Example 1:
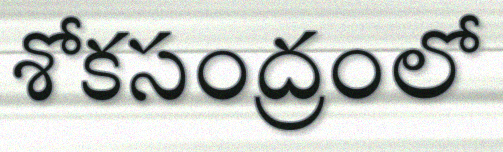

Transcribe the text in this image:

శోకసంద్రంలో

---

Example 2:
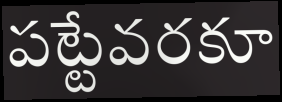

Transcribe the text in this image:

పట్టేవరకూ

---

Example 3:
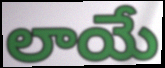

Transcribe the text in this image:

లాయే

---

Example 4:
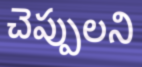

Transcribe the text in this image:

చెప్పులని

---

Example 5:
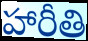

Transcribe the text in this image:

హారీతి